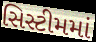
સિસ્ટીમમાં